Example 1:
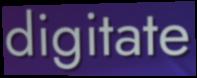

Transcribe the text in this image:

digitate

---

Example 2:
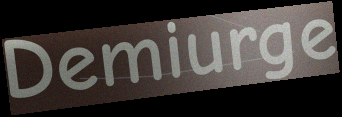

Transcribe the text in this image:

Demiurge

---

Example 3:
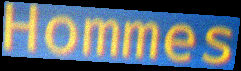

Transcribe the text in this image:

Hommes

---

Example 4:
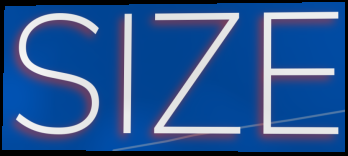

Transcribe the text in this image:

SIZE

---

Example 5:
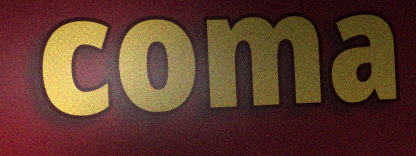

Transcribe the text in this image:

coma